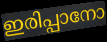
ഇരിപ്പാനോ